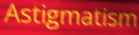
Astigmatism